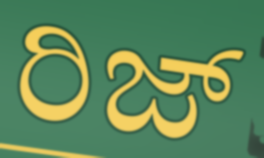
ರಿಜ್